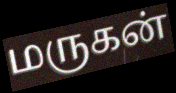
மருகன்